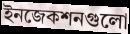
ইনজেকশনগুলো